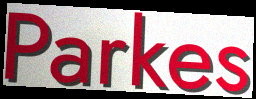
Parkes